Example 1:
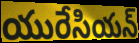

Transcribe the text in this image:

యురేసియన్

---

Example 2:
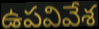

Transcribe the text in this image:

ఉపవివేశ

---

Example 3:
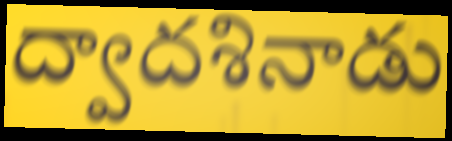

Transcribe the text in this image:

ద్వాదశినాడు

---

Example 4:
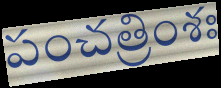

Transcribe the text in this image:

పంచత్రింశః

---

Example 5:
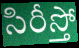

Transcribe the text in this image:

సిరీస్తో